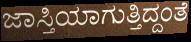
ಜಾಸ್ತಿಯಾಗುತ್ತಿದ್ದಂತೆ